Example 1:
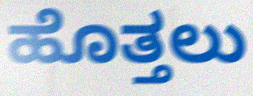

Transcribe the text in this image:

ಹೊತ್ತಲು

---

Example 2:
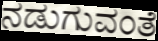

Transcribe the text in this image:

ನಡುಗುವಂತೆ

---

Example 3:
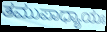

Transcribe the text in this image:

ತಮುಪಾಧ್ಯಾಯಃ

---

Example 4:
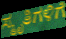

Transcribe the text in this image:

ಸ್ಮೃತಿಗಳಿಗೆ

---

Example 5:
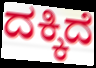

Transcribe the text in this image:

ದಕ್ಕಿದೆ